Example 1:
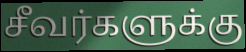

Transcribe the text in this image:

சீவர்களுக்கு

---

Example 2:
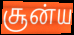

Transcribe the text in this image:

சூன்ய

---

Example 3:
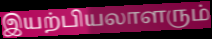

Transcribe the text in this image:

இயற்பியலாளரும்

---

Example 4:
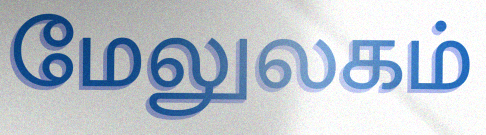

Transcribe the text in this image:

மேலுலகம்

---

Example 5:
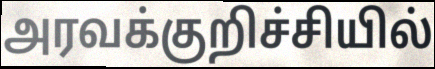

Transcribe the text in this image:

அரவக்குறிச்சியில்